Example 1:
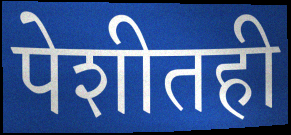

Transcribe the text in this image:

पेशीतही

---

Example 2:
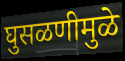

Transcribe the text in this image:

घुसळणीमुळे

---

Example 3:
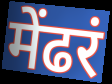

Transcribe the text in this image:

मेंढरं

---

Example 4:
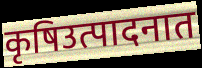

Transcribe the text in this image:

कृषिउत्पादनात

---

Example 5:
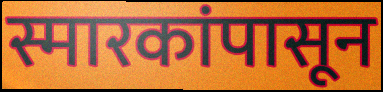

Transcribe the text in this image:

स्मारकांपासून